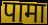
पामा